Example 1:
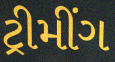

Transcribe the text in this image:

ટ્રીમીંગ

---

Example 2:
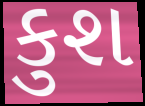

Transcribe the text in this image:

કુશ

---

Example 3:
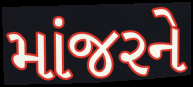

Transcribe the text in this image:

માંજરને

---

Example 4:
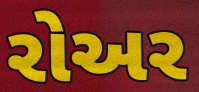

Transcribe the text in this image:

રોઅર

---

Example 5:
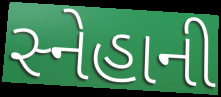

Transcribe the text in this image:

સ્નેહાની